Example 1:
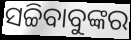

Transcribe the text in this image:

ସଚ୍ଚିବାବୁଙ୍କର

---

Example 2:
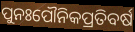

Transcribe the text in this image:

ପୁନଃପୌନିକପ୍ରତିବର୍ଷ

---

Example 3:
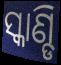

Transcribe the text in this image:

ସ୍କାଣ୍ଡି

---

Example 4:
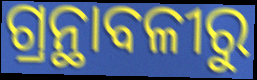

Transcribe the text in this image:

ଗ୍ରନ୍ଥାବଳୀରୁ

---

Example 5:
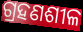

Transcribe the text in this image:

ଗ୍ରହଣଶୀଳ